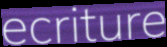
ecriture